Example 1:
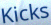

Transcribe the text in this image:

Kicks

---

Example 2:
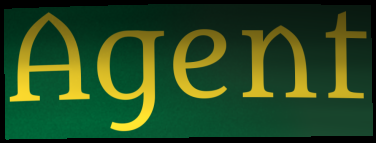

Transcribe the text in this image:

Agent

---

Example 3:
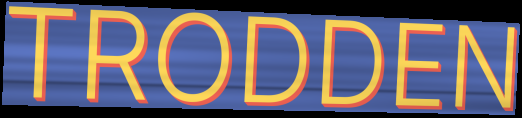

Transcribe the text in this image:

TRODDEN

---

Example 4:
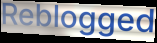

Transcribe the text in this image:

Reblogged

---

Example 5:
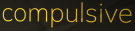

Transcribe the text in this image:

compulsive